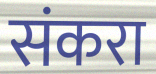
संकरा